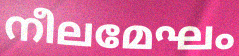
നീലമേഘം